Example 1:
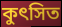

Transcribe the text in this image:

কুৎসিত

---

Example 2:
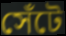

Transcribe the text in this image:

সেঁটে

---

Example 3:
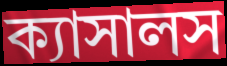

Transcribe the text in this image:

ক্যাসালস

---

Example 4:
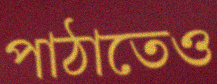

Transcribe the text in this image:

পাঠাতেও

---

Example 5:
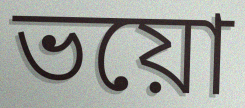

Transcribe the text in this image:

ভয়ো